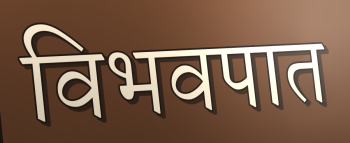
विभवपात